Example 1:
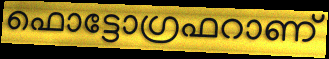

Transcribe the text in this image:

ഫൊട്ടോഗ്രഫറാണ്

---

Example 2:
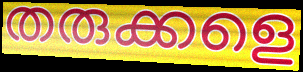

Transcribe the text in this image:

തരുക്കളെ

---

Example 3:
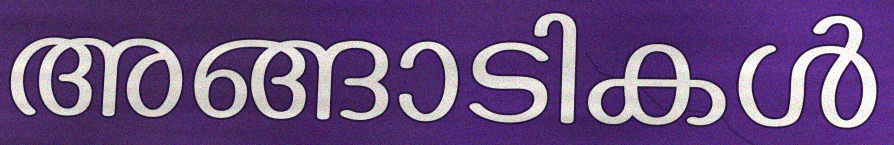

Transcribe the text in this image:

അങ്ങാടികൾ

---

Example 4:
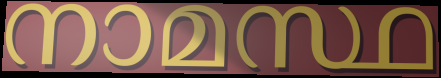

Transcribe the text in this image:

നാമസ്ഥ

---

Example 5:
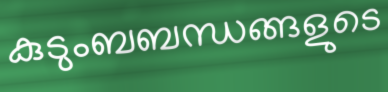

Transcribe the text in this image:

കുടുംബബന്ധങ്ങളുടെ